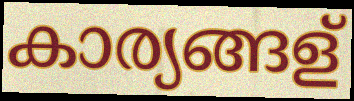
കാര്യങ്ങള്